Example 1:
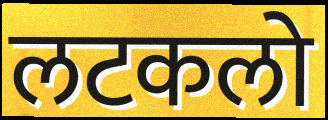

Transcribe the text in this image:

लटकलो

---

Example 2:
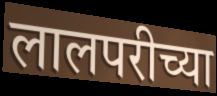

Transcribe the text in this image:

लालपरीच्या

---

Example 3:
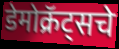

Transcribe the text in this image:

डेमोक्रॅट्सचे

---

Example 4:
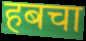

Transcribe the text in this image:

हबचा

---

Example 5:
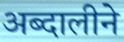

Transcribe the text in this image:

अब्दालीने